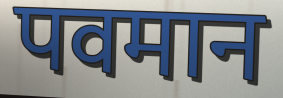
पवमान